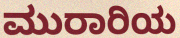
ಮುರಾರಿಯ